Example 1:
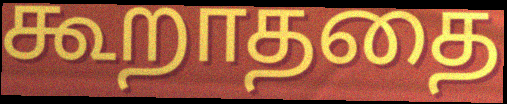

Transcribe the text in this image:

கூறாததை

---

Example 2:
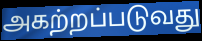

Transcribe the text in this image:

அகற்றப்படுவது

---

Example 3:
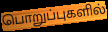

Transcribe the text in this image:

பொறுப்புகளில்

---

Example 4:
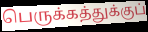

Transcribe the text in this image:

பெருக்கத்துக்குப்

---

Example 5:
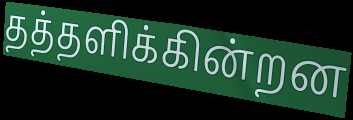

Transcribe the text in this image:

தத்தளிக்கின்றன